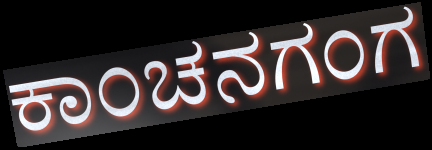
ಕಾಂಚನಗಂಗ